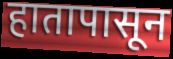
हातापासून